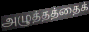
அழுத்தத்தைக்